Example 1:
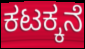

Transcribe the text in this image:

ಕಟಕ್ಕನೆ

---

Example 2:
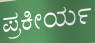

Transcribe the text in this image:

ಪ್ರಕೀರ್ಯ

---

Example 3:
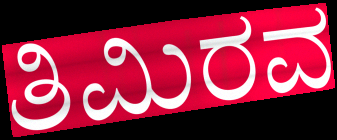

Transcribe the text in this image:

ತಿಮಿರವ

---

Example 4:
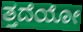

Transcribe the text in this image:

ತ್ತದೆಯೋ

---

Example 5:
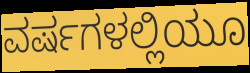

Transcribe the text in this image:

ವರ್ಷಗಳಲ್ಲಿಯೂ